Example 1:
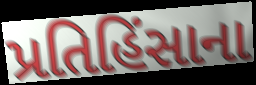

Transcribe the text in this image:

પ્રતિહિંસાના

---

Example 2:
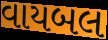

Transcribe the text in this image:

વાયબલ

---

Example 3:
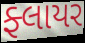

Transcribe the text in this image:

ફ્લાયર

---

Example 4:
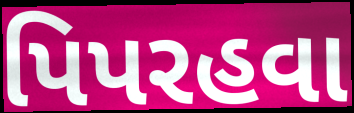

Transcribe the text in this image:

પિપરહવા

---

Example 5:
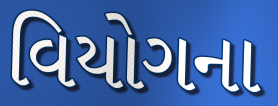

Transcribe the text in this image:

વિયોગના